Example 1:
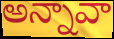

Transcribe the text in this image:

అన్నావా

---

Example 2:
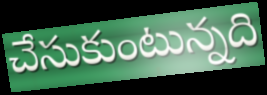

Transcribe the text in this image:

చేసుకుంటున్నది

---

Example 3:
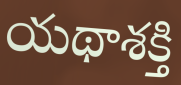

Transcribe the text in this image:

యథాశక్తి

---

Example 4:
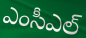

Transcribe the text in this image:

ఎంసీఎల్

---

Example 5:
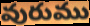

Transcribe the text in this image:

వురుము